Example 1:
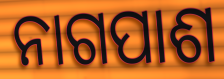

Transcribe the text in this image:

ନାଗପାଶ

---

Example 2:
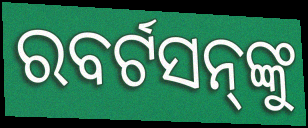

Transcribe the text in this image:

ରବର୍ଟସନ୍‌ଙ୍କୁ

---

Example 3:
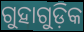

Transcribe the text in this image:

ଗୁହାଗୁଡ଼ିକ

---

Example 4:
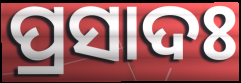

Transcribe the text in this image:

ପ୍ରସାଦଃ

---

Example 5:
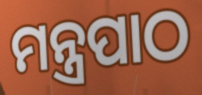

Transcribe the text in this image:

ମନ୍ତ୍ରପାଠ